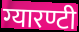
ग्यारण्टी